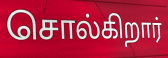
சொல்கிறார்